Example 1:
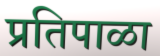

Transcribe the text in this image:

प्रतिपाळा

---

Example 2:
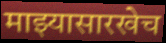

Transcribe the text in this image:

माझ्यासारखेच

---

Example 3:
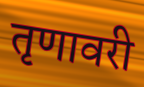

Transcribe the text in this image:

तृणावरी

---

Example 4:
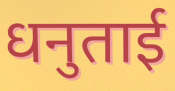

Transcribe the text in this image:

धनुताई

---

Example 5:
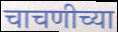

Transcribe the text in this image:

चाचणीच्या